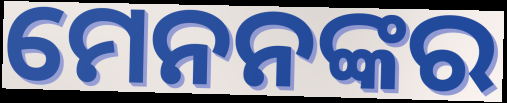
ମେନନଙ୍କର